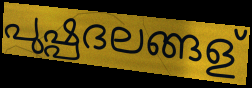
പുഷ്പദലങ്ങള്